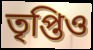
তৃপ্তিও